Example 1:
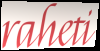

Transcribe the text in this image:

raheti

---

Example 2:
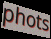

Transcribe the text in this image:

phots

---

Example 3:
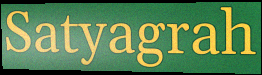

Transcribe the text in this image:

Satyagrah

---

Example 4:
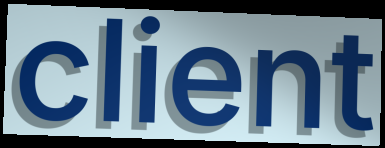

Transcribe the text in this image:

client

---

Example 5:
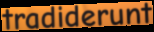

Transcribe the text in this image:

tradiderunt